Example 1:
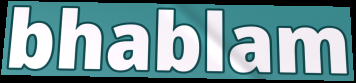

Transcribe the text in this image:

bhablam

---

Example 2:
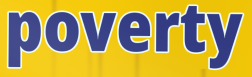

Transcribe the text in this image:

poverty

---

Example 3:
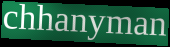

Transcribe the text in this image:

chhanyman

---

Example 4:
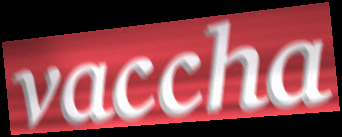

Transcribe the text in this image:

vaccha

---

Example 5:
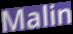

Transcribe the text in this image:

Malin